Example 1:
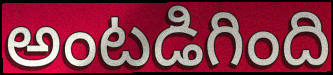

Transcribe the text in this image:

అంటడిగింది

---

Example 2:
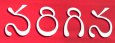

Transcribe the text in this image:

నరిగిన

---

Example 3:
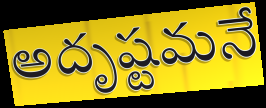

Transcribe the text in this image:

అదృష్టమనే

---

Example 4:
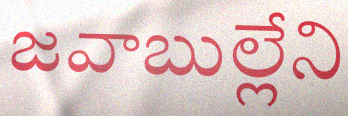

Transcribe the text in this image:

జవాబుల్లేని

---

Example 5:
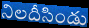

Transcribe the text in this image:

నిలదీసిండు